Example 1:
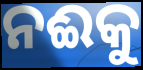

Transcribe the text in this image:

ନଈକୁ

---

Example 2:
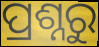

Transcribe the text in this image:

ପ୍ରଶ୍ନରୁ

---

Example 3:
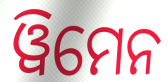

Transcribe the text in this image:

ୱିମେନ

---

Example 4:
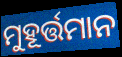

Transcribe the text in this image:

ମୁହୂର୍ତ୍ତମାନ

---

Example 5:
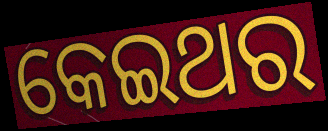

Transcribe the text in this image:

କେଇଥର